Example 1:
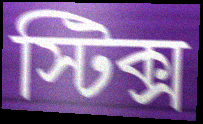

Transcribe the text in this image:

স্টিক্স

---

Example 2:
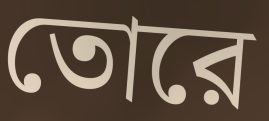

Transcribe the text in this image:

তোরে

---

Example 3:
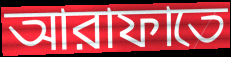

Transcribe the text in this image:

আরাফাতে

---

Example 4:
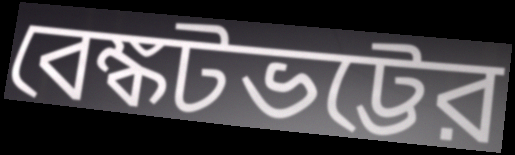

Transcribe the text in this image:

বেঙ্কটভট্টের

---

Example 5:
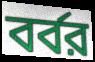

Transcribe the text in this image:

বর্বর